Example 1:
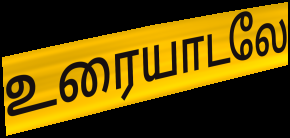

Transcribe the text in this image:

உரையாடலே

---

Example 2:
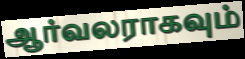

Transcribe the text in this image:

ஆர்வலராகவும்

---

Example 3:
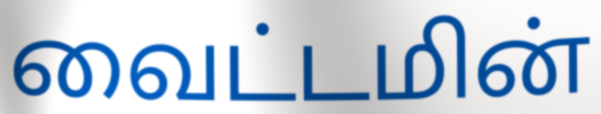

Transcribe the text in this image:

வைட்டமின்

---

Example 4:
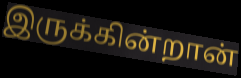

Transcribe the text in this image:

இருக்கின்றான்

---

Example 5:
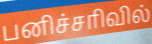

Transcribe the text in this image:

பனிச்சரிவில்